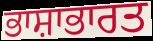
ਭਾਸ਼ਾਭਾਰਤ